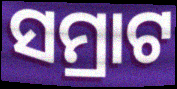
ସମ୍ରାଟ